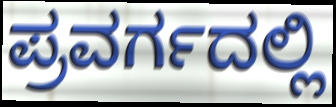
ಪ್ರವರ್ಗದಲ್ಲಿ